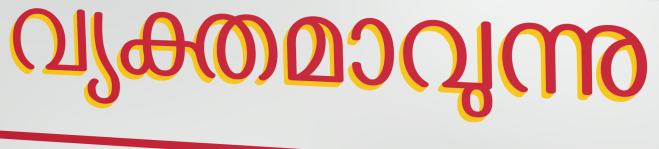
വ്യക്തമാവുന്നു